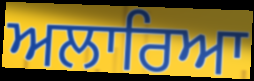
ਅਲਾਰਿਆ